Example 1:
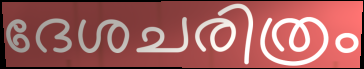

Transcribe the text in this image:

ദേശചരിത്രം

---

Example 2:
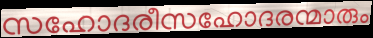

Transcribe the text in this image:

സഹോദരീസഹോദരന്മാരും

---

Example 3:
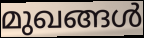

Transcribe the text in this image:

മുഖങ്ങൾ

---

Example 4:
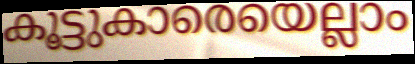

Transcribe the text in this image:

കൂട്ടുകാരെയെല്ലാം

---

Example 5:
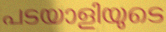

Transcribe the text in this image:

പടയാളിയുടെ